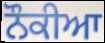
ਨੌਕੀਆ